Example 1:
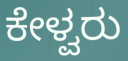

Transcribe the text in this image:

ಕೇಳ್ವರು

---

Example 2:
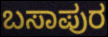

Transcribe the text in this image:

ಬಸಾಪುರ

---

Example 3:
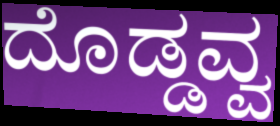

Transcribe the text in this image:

ದೊಡ್ಡವ್ವ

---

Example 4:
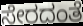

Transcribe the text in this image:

ಸೇರದಂತೆ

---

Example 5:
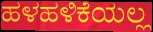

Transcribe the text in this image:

ಹಳಹಳಿಕೆಯಲ್ಲ